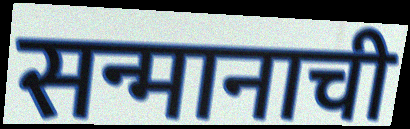
सन्मानाची